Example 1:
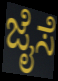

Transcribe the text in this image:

ಜೈಸೆ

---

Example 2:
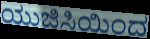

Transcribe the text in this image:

ಯುಜಿಸಿಯಿಂದ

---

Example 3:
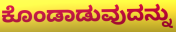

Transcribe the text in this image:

ಕೊಂಡಾಡುವುದನ್ನು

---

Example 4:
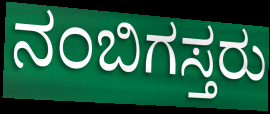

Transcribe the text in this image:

ನಂಬಿಗಸ್ತರು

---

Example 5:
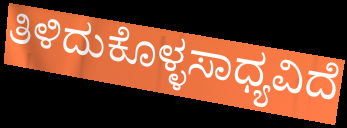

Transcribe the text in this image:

ತಿಳಿದುಕೊಳ್ಳಸಾಧ್ಯವಿದೆ